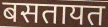
बसतायत